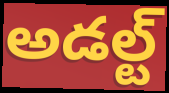
అడల్ట్